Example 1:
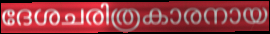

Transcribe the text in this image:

ദേശചരിത്രകാരനായ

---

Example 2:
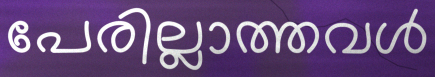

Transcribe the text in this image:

പേരില്ലാത്തവൾ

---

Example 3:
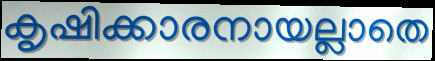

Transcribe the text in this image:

കൃഷിക്കാരനായല്ലാതെ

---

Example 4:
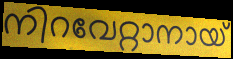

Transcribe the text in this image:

നിറവേറ്റാനായ്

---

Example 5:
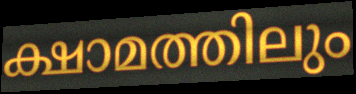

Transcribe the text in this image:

ക്ഷാമത്തിലും